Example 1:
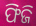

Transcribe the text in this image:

ଫିଜି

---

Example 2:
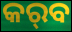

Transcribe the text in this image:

କର୍‌ବ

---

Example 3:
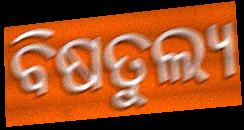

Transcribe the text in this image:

ବିଷତୁଲ୍ୟ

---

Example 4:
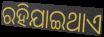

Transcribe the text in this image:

ରହିଯାଇଥାଏ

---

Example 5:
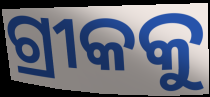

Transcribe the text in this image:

ଗ୍ରୀକକୁ